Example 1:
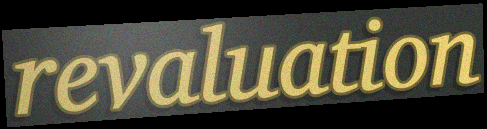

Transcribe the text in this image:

revaluation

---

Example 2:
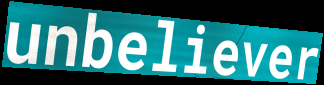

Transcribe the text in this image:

unbeliever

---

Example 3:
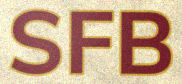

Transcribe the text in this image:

SFB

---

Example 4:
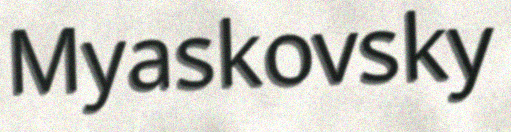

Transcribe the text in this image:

Myaskovsky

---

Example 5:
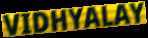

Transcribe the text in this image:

VIDHYALAY